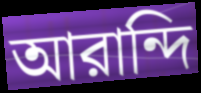
আরান্দি